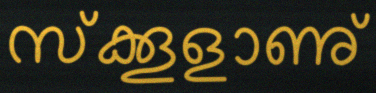
സ്ക്കൂളാണു്